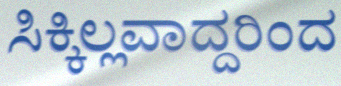
ಸಿಕ್ಕಿಲ್ಲವಾದ್ದರಿಂದ